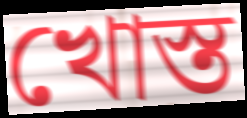
খোস্ত